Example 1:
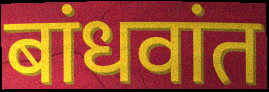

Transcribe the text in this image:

बांधवांत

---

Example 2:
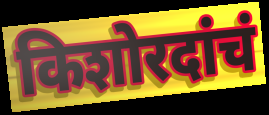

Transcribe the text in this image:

किशोरदांचं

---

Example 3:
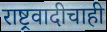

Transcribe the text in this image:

राष्ट्रवादीचाही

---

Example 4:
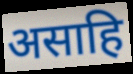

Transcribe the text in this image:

असाहि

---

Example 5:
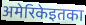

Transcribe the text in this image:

अमेरिकेइतका